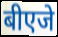
बीएजे